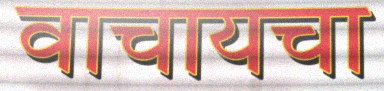
वाचायचा